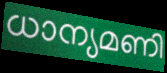
ധാന്യമണി